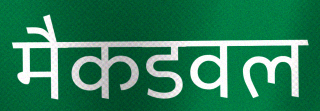
मैकडवल